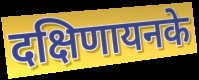
दक्षिणायनके